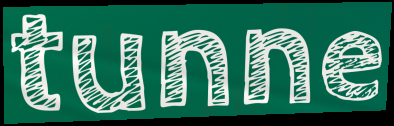
tunne